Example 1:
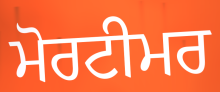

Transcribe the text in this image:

ਮੋਰਟੀਮਰ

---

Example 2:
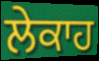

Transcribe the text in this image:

ਲੇਕਾਹ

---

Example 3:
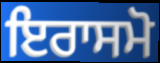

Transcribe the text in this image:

ਇਰਾਸਮੋ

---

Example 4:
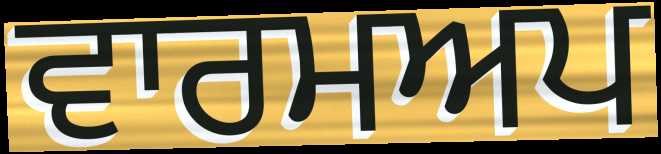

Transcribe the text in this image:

ਵਾਰਮਅਪ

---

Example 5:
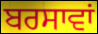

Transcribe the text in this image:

ਬਰਸਾਵਾਂ